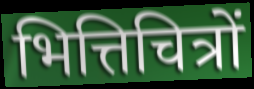
भित्तिचित्रों